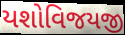
યશોવિજયજી